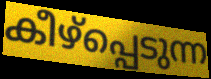
കീഴ്പ്പെടുന്ന